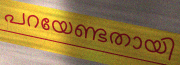
പറയേണ്ടതായി